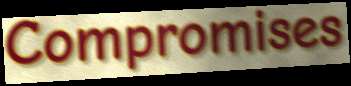
Compromises